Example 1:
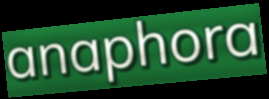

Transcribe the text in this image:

anaphora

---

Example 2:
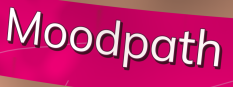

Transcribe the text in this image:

Moodpath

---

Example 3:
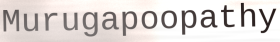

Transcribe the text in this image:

Murugapoopathy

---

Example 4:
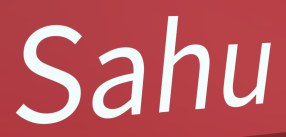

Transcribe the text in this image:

Sahu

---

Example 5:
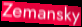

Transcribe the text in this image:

Zemansky